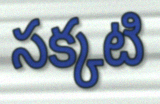
సక్కటి